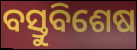
ବସ୍ତୁବିଶେଷ